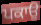
ਪਕਾਉ